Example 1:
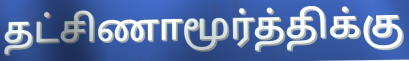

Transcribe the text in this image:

தட்சிணாமூர்த்திக்கு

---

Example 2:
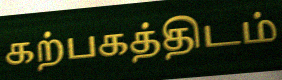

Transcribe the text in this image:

கற்பகத்திடம்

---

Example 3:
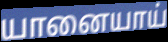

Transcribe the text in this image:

யானையாய்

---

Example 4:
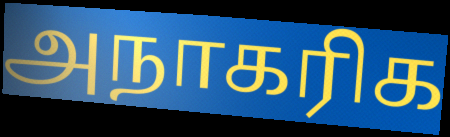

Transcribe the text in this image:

அநாகரிக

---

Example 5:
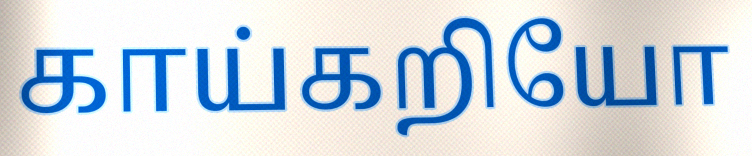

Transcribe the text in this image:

காய்கறியோ